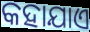
କହାଯାଏ